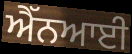
ਐੱਨਆਈ